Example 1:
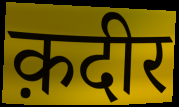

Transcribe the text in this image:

क़दीर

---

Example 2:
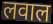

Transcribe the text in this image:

लवाल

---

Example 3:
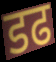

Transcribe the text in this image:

डढ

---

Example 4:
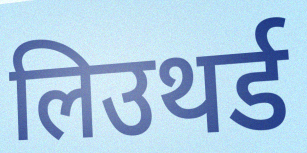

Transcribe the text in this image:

लिउथर्ड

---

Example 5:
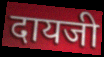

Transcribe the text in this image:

दायजी